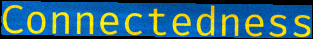
Connectedness